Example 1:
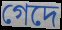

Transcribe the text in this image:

গেদে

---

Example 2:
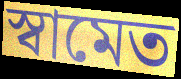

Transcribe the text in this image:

স্বামেত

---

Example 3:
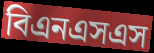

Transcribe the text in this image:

বিএনএসএস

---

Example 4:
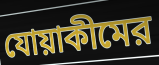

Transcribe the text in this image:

যোয়াকীমের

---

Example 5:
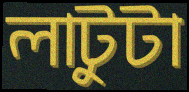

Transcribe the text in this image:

লাটুটা